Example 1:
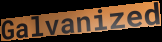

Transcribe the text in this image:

Galvanized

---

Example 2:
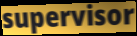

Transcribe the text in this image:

supervisor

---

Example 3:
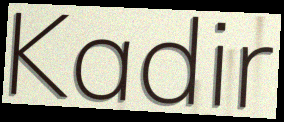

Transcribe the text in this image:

Kadir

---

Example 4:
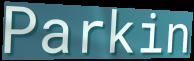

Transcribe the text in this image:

Parkin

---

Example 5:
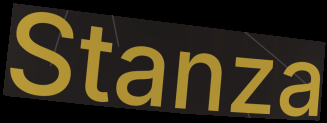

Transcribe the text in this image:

Stanza